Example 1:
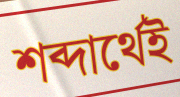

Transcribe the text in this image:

শব্দার্থেই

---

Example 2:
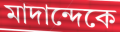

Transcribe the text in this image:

মাদান্দেকে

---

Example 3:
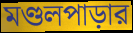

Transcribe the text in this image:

মণ্ডলপাড়ার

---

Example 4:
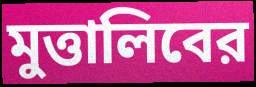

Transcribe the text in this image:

মুত্তালিবের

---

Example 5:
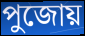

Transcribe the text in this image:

পুজোয়